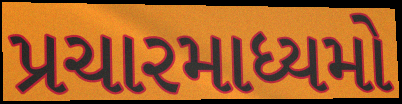
પ્રચારમાધ્યમો